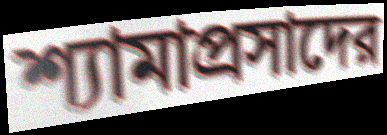
শ্যামাপ্রসাদের